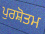
ਪੁਰਸ਼ੋਤਮ